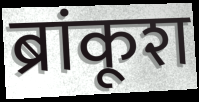
ब्रांकूश